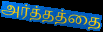
அர்த்தத்தை